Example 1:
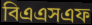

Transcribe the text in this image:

বিএএসএফ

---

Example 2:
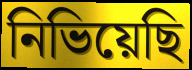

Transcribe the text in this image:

নিভিয়েছি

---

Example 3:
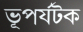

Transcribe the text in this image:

ভূপর্যটক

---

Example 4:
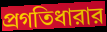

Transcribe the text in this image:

প্রগতিধারার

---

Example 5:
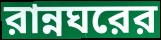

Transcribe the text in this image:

রান্নঘরের